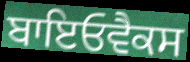
ਬਾਇਓਵੈਕਸ